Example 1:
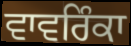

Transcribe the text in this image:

ਵਾਵਰਿੰਕਾ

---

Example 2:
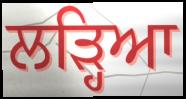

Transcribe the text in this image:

ਲੜ੍ਹਿਆ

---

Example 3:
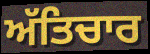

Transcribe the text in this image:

ਅੱਤਿਚਾਰ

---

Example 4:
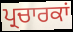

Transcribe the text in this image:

ਪ੍ਰਚਾਰਕਾਂ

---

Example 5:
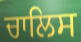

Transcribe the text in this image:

ਚਾਲਿਸ